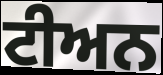
ਟੀਅਨ